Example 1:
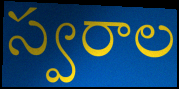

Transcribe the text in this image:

స్వరాల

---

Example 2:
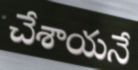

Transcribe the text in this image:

చేశాయనే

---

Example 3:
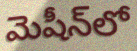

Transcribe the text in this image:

మెషీన్‌లో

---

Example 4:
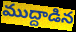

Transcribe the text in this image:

ముద్దాడిన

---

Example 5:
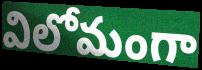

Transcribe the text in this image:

విలోమంగా